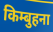
किम्बुहना